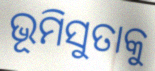
ଭୂମିସୁତାକୁ